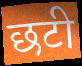
छटी